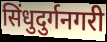
सिंधुदुर्गनगरी